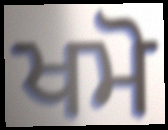
ਖਮੋ